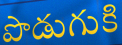
పొడుగుకి